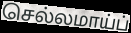
செல்லமாய்ப்